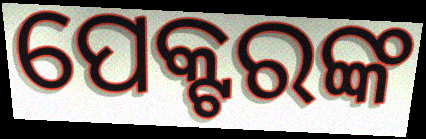
ପେକ୍ଟରଙ୍କ